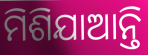
ମିଶିଯାଆନ୍ତି